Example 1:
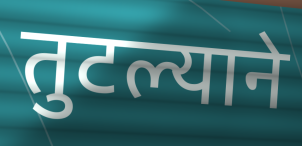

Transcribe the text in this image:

तुटल्याने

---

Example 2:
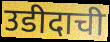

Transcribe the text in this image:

उडीदाची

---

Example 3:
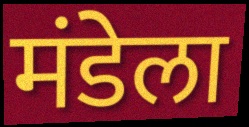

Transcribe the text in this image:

मंडेला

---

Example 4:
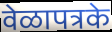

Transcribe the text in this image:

वेळापत्रके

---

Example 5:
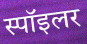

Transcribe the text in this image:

स्पॉइलर